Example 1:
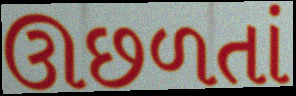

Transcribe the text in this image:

ઊછળતાં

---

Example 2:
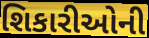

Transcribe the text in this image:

શિકારીઓની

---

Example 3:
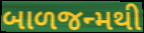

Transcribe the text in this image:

બાળજન્મથી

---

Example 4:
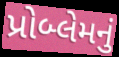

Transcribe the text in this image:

પ્રોબ્લેમનું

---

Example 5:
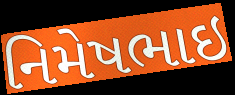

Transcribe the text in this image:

નિમેષભાઇ